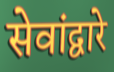
सेवांद्वारे